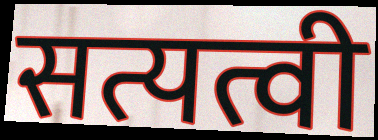
सत्यत्वी